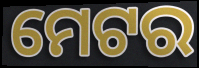
ମେଟର